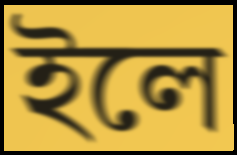
ইলে